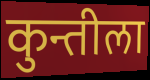
कुन्तीला